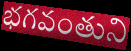
భగవంతుని